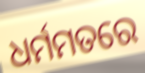
ଧର୍ମମତରେ